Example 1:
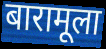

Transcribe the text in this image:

बारामूला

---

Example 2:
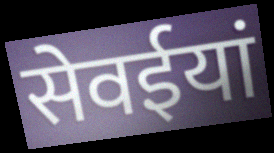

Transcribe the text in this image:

सेवईयां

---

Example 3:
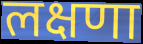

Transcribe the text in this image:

लक्षणा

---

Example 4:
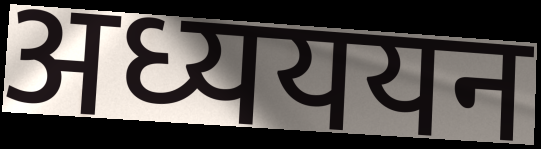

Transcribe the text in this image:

अध्यययन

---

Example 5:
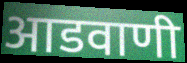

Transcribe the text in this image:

आडवाणी